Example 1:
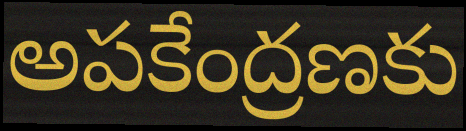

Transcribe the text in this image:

అపకేంద్రణకు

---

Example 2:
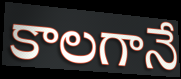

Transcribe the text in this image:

కాలగానే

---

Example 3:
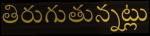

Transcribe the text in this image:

తిరుగుతున్నట్లు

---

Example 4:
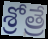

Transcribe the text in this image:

శ్రోత్రే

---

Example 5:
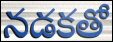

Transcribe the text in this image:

నడకతో